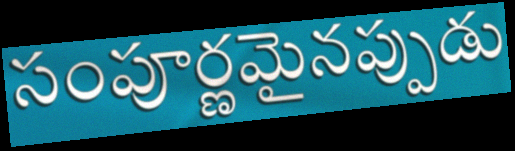
సంపూర్ణమైనప్పుడు